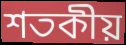
শতকীয়